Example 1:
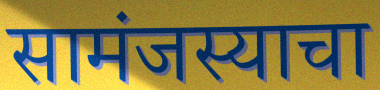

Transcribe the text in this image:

सामंजस्याचा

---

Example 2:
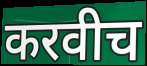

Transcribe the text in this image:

करवीच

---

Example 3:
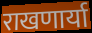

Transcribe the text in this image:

राखणार्या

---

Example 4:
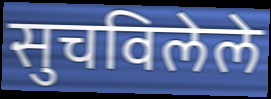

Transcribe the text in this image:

सुचविलेले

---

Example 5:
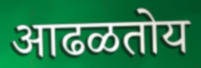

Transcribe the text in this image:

आढळतोय